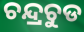
ଚନ୍ଦ୍ରଚୁଡ